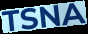
TSNA